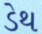
ડેથ